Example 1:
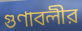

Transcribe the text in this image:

গুণাবলীর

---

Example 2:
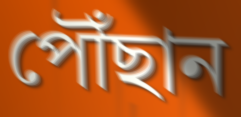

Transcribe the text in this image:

পৌঁছান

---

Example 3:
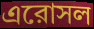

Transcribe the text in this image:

এরোসল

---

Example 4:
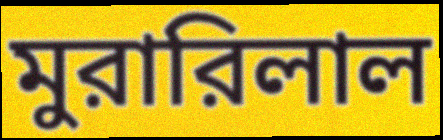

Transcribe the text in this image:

মুরারিলাল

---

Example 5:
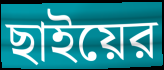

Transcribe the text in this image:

ছাইয়ের